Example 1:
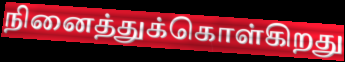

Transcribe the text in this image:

நினைத்துக்கொள்கிறது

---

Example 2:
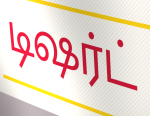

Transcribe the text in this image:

டிஷர்ட்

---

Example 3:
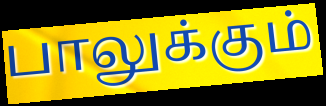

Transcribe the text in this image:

பாலுக்கும்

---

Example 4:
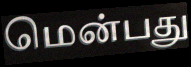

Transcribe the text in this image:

மென்பது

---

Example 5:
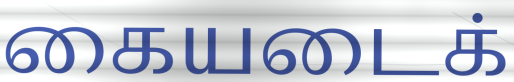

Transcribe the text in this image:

கையடைக்